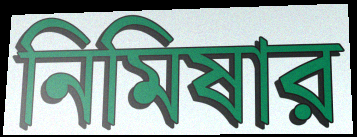
নিমিষার